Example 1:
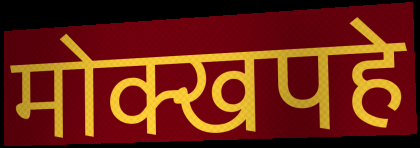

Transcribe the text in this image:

मोक्खपहे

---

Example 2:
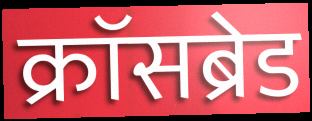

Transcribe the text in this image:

क्रॉसब्रेड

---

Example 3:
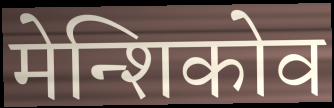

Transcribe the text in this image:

मेन्शिकोव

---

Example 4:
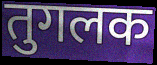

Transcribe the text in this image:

तुगलक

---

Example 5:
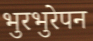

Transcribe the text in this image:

भुरभुरेपन